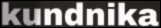
kundnika